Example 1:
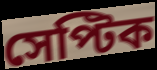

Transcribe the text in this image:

সেপ্টিক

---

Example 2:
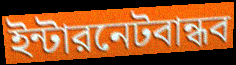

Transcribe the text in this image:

ইন্টারনেটবান্ধব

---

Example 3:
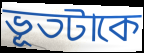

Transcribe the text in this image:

ভূতটাকে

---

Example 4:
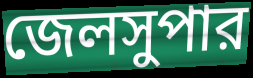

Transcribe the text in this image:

জেলসুপার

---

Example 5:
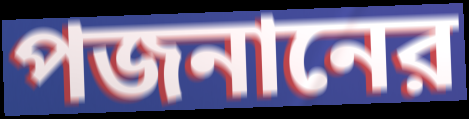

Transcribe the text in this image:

পজনানের